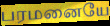
பரமனையே